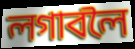
লগাবলৈ